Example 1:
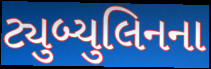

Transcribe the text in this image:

ટ્યુબ્યુલિનના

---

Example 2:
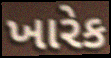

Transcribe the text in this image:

ખારેક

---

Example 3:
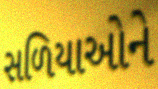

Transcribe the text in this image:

સળિયાઓને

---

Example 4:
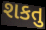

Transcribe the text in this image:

શકતુ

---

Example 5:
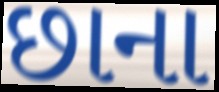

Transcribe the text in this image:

છાના